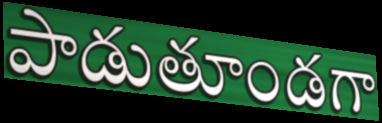
పాడుతూండగా